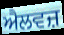
ਐਲਵਜ਼